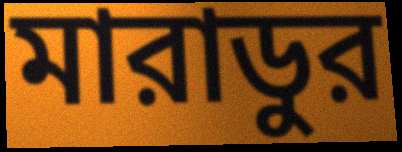
মারাডুর